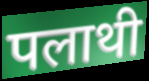
पलाथी